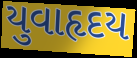
યુવાહૃદય